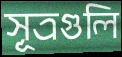
সূত্রগুলি